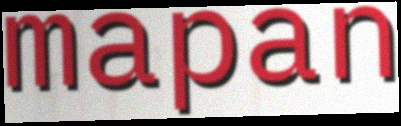
mapan